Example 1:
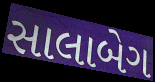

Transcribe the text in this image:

સાલાબેગ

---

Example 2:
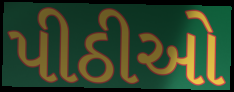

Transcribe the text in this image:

પીઠીઓ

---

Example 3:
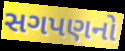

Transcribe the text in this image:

સગપણનો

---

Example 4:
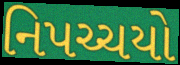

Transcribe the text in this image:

નિપચ્ચયો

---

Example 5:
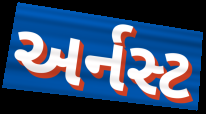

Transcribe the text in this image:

અર્નસ્ટ